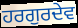
ਹਰਗੁਰਦੇਵ